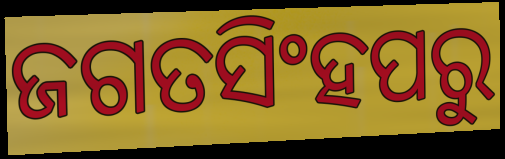
ଜଗତସିଂହପରୁ